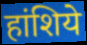
हांशिये